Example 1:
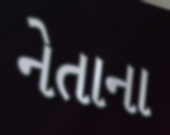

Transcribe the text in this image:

નેતાના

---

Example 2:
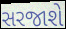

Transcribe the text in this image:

સરજાશે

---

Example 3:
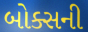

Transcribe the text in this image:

બોક્સની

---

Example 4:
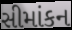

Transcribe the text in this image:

સીમાંકન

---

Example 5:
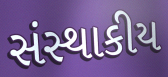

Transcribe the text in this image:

સંસ્થાકીય